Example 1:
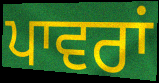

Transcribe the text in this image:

ਪਾਵਰਾਂ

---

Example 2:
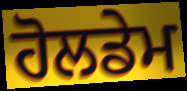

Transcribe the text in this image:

ਹੋਲਡੇਮ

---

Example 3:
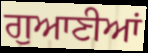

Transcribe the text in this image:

ਗੁਆਣੀਆਂ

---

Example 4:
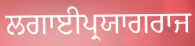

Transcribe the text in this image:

ਲਗਾਈਪ੍ਰਯਾਗਰਾਜ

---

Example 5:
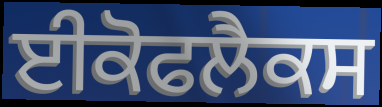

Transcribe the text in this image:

ਈਕੋਫਲੈਕਸ